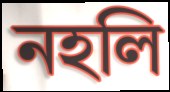
নহলি